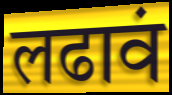
लढावं